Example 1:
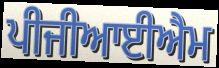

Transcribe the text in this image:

ਪੀਜੀਆਈਐਮ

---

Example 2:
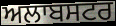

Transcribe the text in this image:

ਅਲਾਬਸਟਰ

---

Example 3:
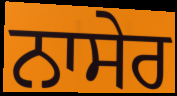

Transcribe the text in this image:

ਨਾਸੇਰ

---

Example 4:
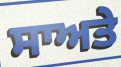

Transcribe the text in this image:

ਸਾਅਤੇ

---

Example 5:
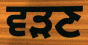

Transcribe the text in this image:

ਵੜਣ